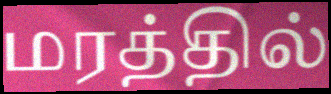
மரத்தில்